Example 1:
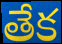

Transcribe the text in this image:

తేక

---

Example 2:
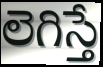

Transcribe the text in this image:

లెగిస్తే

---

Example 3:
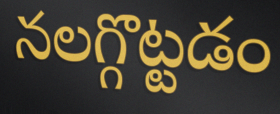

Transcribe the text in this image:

నలగ్గొట్టడం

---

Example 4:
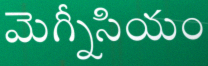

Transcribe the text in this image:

మెగ్నీసియం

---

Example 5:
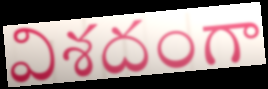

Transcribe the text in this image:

విశదంగా